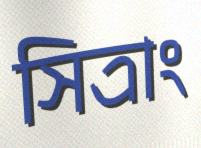
সিত্রাং